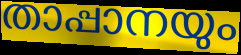
താപ്പാനയും